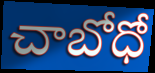
చాబోధో